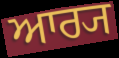
ਆਰ੍ਯ